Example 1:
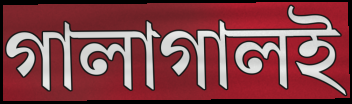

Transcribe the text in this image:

গালাগালই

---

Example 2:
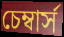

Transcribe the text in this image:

চেম্বার্স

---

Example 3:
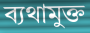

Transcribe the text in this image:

ব্যথামুক্ত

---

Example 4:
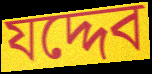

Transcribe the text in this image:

যদ্দেব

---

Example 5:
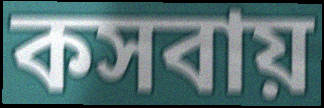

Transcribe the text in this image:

কসবায়